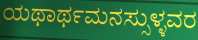
ಯಥಾರ್ಥಮನಸ್ಸುಳ್ಳವರ